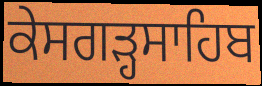
ਕੇਸਗੜ੍ਹਸਾਹਿਬ